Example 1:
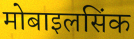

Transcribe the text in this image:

मोबाइलसिंक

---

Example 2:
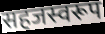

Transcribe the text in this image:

सहजस्वरूप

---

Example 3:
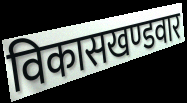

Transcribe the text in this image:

विकासखण्‍डवार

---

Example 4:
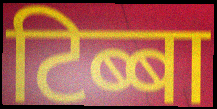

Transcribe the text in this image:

टिब्बा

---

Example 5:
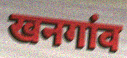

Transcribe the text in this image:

खनगांव